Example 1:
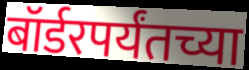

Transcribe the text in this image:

बॉर्डरपर्यंतच्या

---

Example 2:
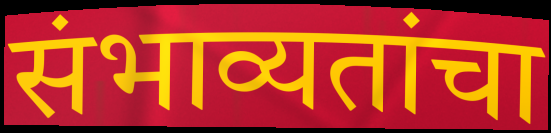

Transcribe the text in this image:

संभाव्यतांचा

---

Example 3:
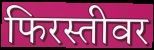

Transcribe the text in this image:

फिरस्तीवर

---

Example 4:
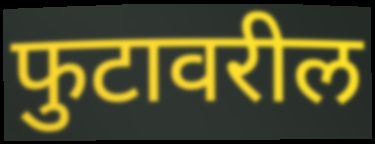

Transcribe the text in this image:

फुटावरील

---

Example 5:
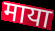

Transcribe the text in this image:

माया